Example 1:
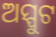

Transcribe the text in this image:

ଅସ୍ପୁଟ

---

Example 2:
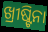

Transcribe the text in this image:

ଖ୍ରୀଷ୍ଟିନା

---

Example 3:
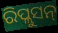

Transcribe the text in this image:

ରିପ୍ଲୁସନ୍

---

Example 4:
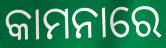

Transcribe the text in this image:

କାମନାରେ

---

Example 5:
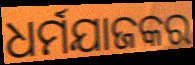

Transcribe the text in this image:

ଧର୍ମଯାଜକର